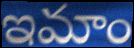
ఇమాం